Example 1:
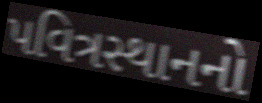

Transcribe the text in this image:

પવિત્રસ્થાનનો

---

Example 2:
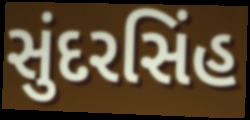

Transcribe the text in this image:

સુંદરસિંહ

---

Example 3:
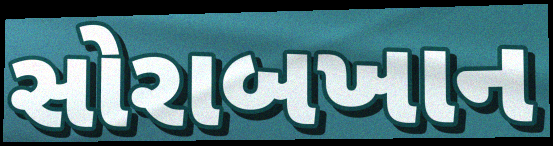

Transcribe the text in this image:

સોરાબખાન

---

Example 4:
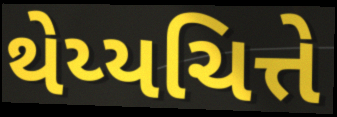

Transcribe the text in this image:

થેય્યચિત્તે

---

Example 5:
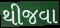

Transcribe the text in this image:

થીજવા